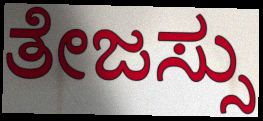
ತೇಜಸ್ಸು